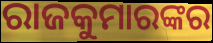
ରାଜକୁମାରଙ୍କର